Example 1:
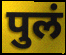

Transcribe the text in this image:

पुलं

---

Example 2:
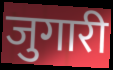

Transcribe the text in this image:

जुगारी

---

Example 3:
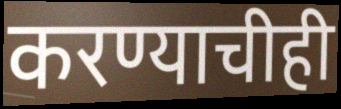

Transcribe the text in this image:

करण्याचीही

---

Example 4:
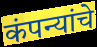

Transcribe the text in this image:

कंपन्यांचे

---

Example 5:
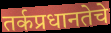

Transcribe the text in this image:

तर्कप्रधानतेचे